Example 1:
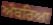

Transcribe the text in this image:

ਅੰਬਰਿਆ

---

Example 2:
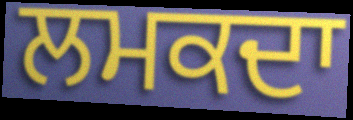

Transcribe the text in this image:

ਲਮਕਦਾ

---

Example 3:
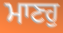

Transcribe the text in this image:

ਮਾਣਹੁ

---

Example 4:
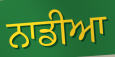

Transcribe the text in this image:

ਨਾਡੀਆ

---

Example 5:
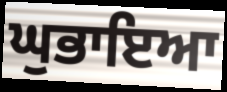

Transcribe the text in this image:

ਘੁਭਾਇਆ